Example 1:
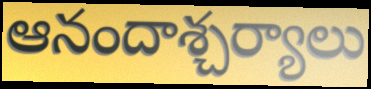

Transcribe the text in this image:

ఆనందాశ్చర్యాలు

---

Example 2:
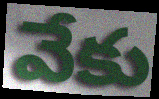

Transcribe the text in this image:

వేకు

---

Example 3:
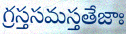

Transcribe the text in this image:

గ్రస్తసమస్తతేజాః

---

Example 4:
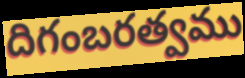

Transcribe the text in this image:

దిగంబరత్వము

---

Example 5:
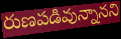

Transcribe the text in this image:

రుణపడివున్నానని